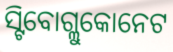
ସ୍ଟିବୋଗ୍ଲୁକୋନେଟ